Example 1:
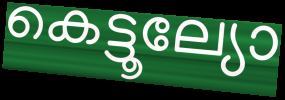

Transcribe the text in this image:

കെട്ടൂല്യോ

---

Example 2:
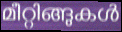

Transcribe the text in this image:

മീറ്റിങ്ങുകൾ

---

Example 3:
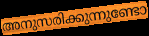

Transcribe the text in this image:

അനുസരിക്കുന്നുണ്ടോ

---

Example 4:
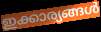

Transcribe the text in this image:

ഇക്കാര്യങ്ങൾ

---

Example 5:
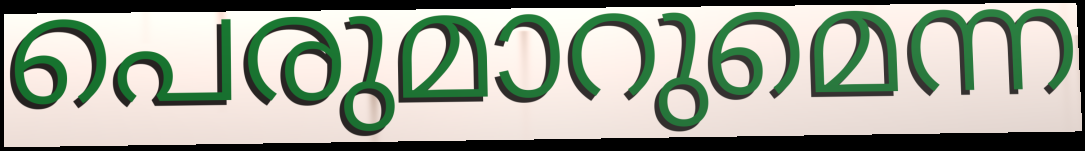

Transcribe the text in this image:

പെരുമാറുമെന്ന